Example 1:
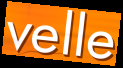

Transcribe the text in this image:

velle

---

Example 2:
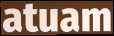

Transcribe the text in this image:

atuam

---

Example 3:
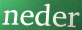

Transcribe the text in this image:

neder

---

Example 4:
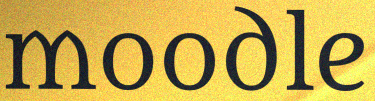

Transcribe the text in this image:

moodle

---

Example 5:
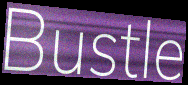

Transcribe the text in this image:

Bustle